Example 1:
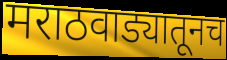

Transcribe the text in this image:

मराठवाड्यातूनच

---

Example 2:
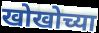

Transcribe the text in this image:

खोखोच्या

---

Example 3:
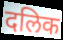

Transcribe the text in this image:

दलिक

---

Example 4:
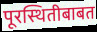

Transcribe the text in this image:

पूरस्थितीबाबत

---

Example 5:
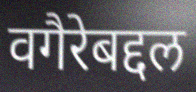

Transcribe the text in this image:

वगैरेबद्दल